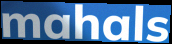
mahals